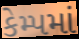
કેમ્પમાં